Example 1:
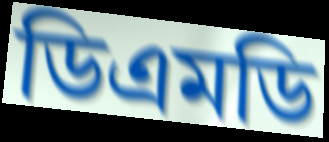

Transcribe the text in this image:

ডিএমডি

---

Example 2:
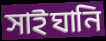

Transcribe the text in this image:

সাইঘানি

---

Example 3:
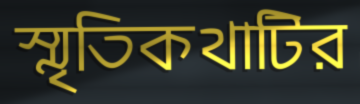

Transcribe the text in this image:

স্মৃতিকথাটির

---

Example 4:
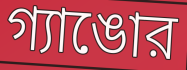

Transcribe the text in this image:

গ্যাঙোর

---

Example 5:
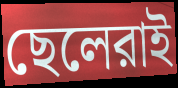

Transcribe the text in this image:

ছেলেরাই